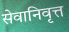
सेवानिवृत्त